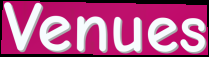
Venues